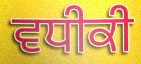
ਵਧੀਕੀ